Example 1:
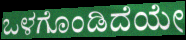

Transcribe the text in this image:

ಒಳಗೊಂಡಿದೆಯೇ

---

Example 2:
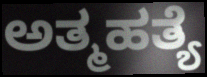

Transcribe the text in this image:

ಅತ್ಮಹತ್ಯೆ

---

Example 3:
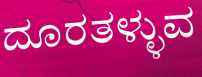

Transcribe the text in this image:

ದೂರತಳ್ಳುವ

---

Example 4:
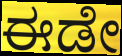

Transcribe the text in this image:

ಈಡೇ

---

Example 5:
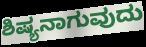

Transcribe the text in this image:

ಶಿಷ್ಯನಾಗುವುದು